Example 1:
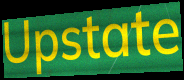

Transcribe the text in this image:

Upstate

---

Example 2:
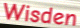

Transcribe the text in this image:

Wisden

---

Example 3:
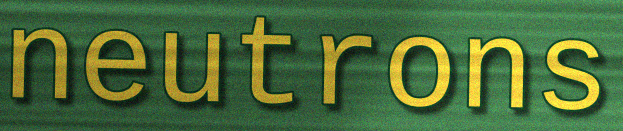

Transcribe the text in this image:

neutrons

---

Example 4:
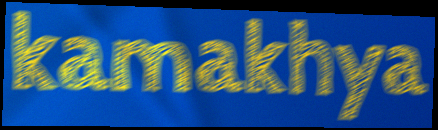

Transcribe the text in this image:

kamakhya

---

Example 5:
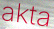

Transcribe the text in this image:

akta